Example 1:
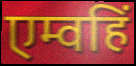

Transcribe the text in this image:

एम्वहिं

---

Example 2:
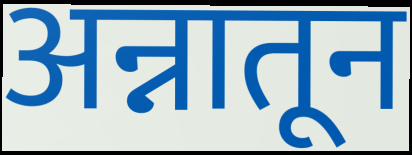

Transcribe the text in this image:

अन्नातून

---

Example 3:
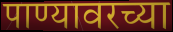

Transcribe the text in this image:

पाण्यावरच्या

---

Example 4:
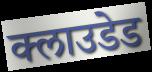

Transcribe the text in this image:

क्लाउडेड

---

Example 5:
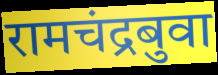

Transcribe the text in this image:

रामचंद्रबुवा